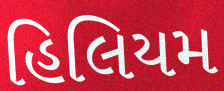
હિલિયમ